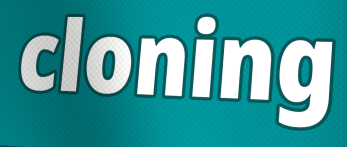
cloning